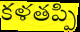
కళతప్పి